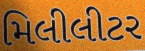
મિલીલીટર